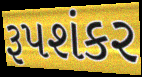
રૂપશંકર